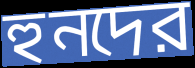
হুনদের